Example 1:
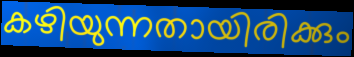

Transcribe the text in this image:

കഴിയുന്നതായിരിക്കും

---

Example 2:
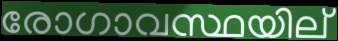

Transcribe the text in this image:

രോഗാവസ്ഥയില്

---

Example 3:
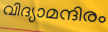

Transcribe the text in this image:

വിദ്യാമന്ദിരം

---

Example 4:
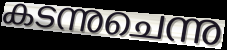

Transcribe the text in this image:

കടന്നുചെന്നു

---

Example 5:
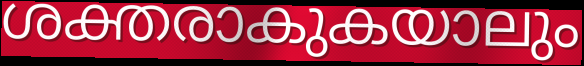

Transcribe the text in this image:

ശക്തരാകുകയാലും